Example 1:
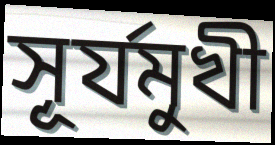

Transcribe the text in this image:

সূর্যমুখী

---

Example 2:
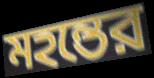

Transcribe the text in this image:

মহন্তের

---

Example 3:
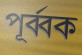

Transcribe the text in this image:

পূর্ব্বক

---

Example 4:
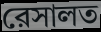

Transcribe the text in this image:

রেসালত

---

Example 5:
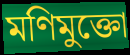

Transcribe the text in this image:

মণিমুক্তো